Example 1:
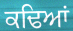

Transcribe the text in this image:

ਕਢਿਆਂ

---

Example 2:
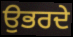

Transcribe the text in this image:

ਉਭਰਦੇ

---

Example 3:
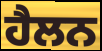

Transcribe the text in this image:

ਹੈਲਨ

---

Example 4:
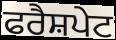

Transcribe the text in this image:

ਫਰੈਸ਼ਪੇਟ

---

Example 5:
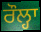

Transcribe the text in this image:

ਰੌਲ੍ਹਾ